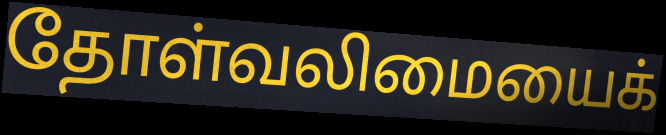
தோள்வலிமையைக்